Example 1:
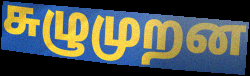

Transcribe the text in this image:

சுழுமுறன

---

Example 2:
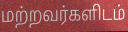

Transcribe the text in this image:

மற்றவர்களிடம்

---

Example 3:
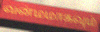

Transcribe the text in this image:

வன்மமாகவும்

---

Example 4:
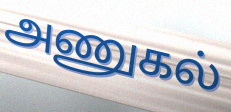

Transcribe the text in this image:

அணுகல்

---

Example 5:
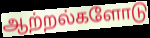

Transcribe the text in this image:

ஆற்றல்களோடு